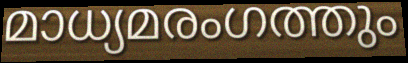
മാധ്യമരംഗത്തും